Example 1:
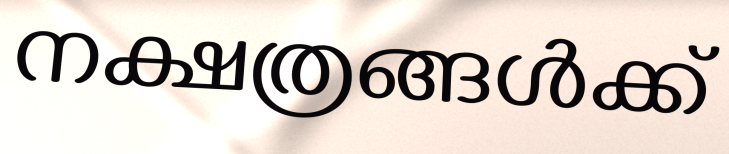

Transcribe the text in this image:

നക്ഷത്രങ്ങൾക്ക്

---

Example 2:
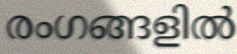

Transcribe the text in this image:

രംഗങ്ങളിൽ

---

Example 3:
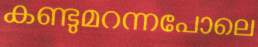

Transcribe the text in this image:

കണ്ടുമറന്നപോലെ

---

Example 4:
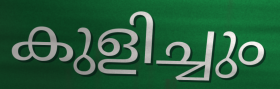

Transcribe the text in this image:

കുളിച്ചും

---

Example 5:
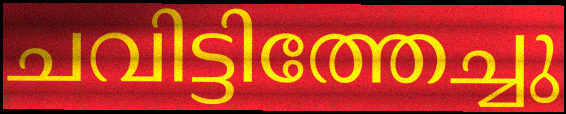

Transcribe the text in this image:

ചവിട്ടിത്തേച്ചു